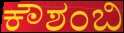
ಕೌಶಂಬಿ